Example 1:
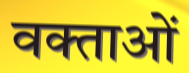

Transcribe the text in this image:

वक्ताओें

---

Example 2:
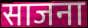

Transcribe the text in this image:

साजना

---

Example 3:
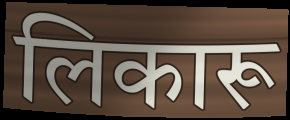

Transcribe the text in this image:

लिकारू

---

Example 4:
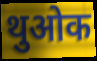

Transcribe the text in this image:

थुओक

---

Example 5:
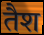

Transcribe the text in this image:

तैश